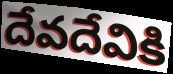
దేవదేవికి